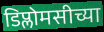
डिप्लोमसीच्या